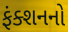
ફંક્શનનો